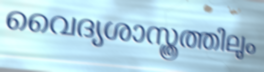
വൈദ്യശാസ്ത്രത്തിലും